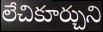
లేచికూర్చుని